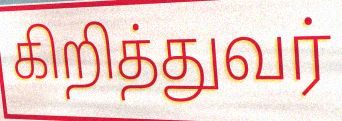
கிறித்துவர்